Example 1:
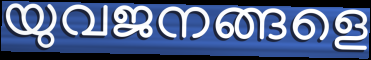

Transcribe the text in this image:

യുവജനങ്ങളെ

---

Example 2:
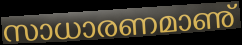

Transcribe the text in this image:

സാധാരണമാണു്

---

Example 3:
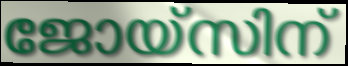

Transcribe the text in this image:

ജോയ്സിന്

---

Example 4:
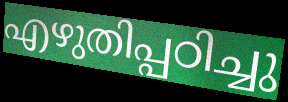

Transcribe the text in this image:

എഴുതിപ്പഠിച്ചു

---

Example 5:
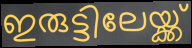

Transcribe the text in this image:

ഇരുട്ടിലേയ്ക്ക്